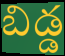
బిడ్డ